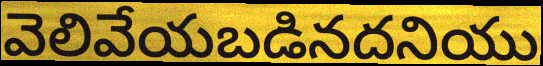
వెలివేయబడినదనియు